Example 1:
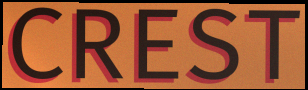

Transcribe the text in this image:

CREST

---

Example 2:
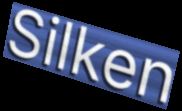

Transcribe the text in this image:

Silken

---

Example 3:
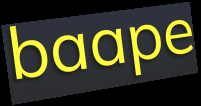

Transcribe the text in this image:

baape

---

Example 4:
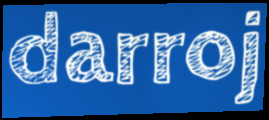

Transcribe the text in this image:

darroj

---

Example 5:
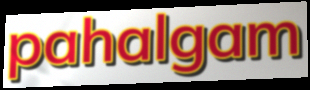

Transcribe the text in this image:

pahalgam